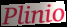
Plinio